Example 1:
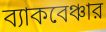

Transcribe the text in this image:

ব্যাকবেঞ্চার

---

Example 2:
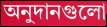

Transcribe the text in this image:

অনুদানগুলো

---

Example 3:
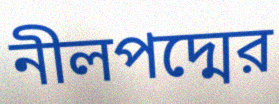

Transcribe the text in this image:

নীলপদ্মের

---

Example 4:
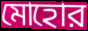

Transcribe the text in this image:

মোহোর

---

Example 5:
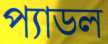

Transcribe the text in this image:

প্যাডল